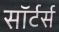
सॉर्टर्स